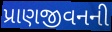
પ્રાણજીવનની